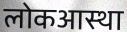
लोकआस्था